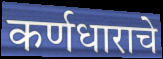
कर्णधाराचे